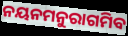
ନୟନମନୁରାଗମିବ